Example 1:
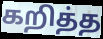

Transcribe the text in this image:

கறித்த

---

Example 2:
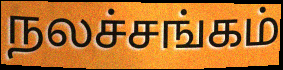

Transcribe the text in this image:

நலச்சங்கம்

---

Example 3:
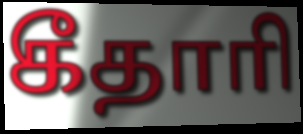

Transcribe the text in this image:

கீதாரி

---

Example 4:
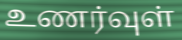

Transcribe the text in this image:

உணர்வுள்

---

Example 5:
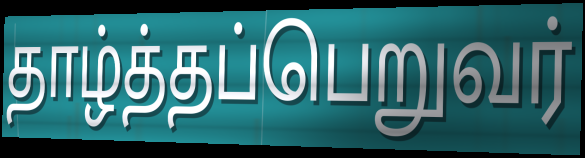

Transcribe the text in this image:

தாழ்த்தப்பெறுவர்